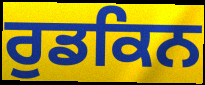
ਰੁਡਕਿਨ